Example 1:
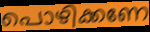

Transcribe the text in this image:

പൊഴിക്കണേ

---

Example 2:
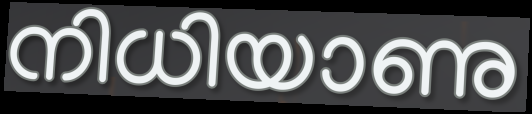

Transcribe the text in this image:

നിധിയാണു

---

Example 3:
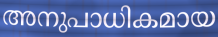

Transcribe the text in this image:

അനുപാധികമായ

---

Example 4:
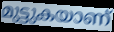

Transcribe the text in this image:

മുട്ടുകയാണ്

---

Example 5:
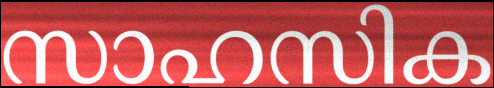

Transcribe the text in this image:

സാഹസിക